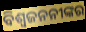
ବିଶ୍ୱଜନନୀଙ୍କର